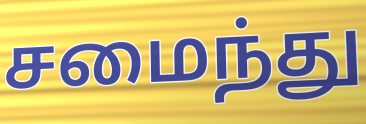
சமைந்து